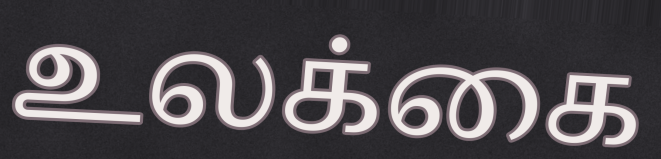
உலக்கை